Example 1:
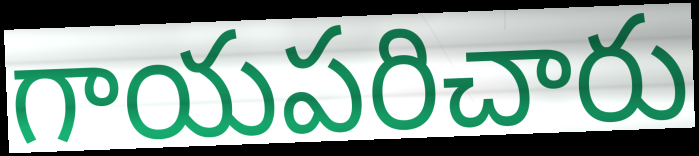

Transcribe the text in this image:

గాయపరిచారు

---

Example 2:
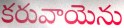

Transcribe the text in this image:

కరువాయెను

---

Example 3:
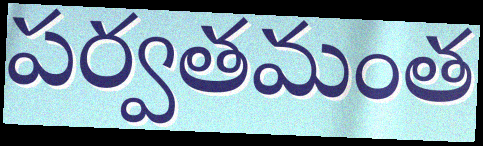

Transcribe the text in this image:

పర్వతమంత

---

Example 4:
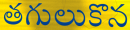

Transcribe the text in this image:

తగులుకొన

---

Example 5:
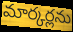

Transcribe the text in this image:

మార్కర్లను